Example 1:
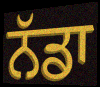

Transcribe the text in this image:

ਨੱਡਾ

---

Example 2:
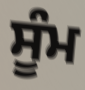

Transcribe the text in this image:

ਸੂੰਮ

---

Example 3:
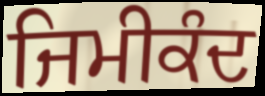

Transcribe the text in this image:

ਜਿਮੀਕੰਦ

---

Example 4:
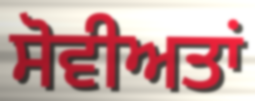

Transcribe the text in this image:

ਸੋਵੀਅਤਾਂ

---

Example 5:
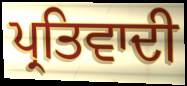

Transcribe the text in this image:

ਪ੍ਰਤਿਵਾਦੀ